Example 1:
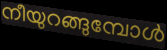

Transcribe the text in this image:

നീയുറങ്ങുമ്പോൾ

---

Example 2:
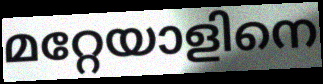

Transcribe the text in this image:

മറ്റേയാളിനെ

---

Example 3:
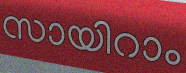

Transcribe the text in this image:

സായിറാം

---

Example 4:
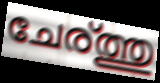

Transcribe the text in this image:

ചേര്ത്തു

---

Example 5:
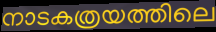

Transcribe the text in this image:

നാടകത്രയത്തിലെ